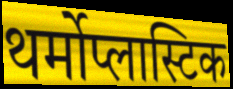
थर्मोप्लास्टिक